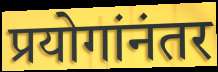
प्रयोगांनंतर